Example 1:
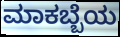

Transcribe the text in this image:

ಮಾಕಬ್ಬೆಯ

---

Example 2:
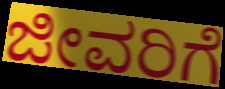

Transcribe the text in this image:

ಜೀವರಿಗೆ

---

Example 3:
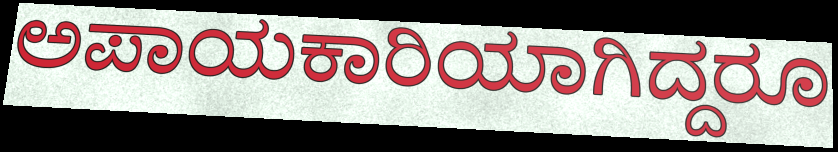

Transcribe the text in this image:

ಅಪಾಯಕಾರಿಯಾಗಿದ್ದರೂ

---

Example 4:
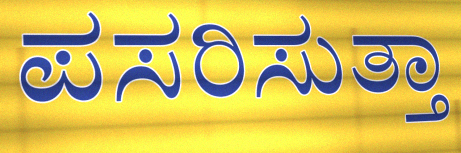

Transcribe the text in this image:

ಪಸರಿಸುತ್ತಾ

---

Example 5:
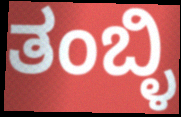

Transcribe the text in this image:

ತಂಬ್ಳಿ